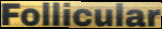
Follicular